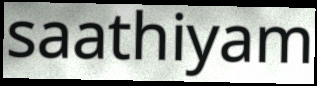
saathiyam